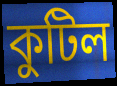
কুটিল